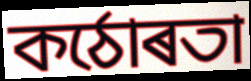
কঠোৰতা